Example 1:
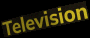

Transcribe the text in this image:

Television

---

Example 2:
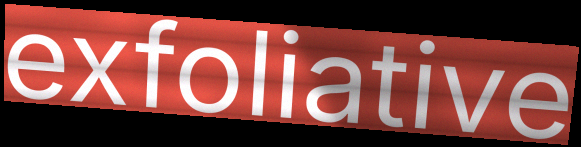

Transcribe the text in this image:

exfoliative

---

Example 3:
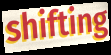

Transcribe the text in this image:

shifting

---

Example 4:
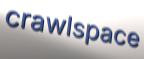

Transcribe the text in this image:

crawlspace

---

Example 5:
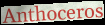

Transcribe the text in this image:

Anthoceros